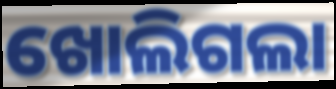
ଖୋଲିଗଲା